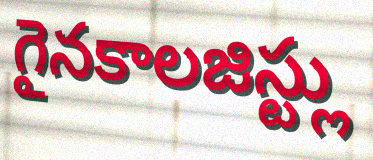
గైనకాలజిస్ట్లు